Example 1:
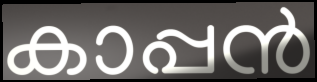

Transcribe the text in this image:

കാപ്പൻ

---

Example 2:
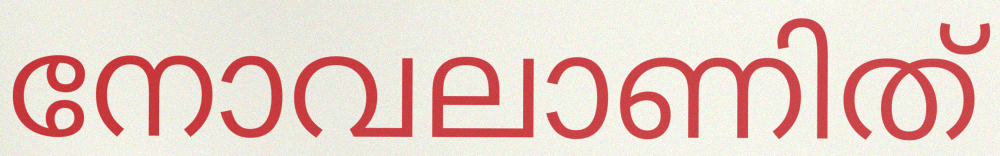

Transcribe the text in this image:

നോവലാണിത്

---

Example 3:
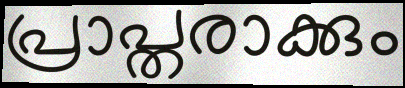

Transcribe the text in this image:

പ്രാപ്തരാക്കും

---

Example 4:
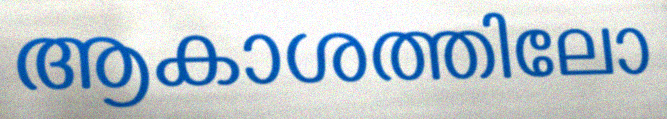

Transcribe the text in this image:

ആകാശത്തിലോ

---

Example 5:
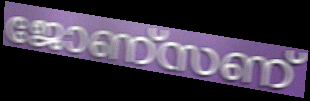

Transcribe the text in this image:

ജോണ്സണ്